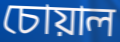
চোয়াল